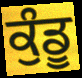
ਕੁੰਡੂ